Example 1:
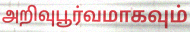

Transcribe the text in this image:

அறிவுபூர்வமாகவும்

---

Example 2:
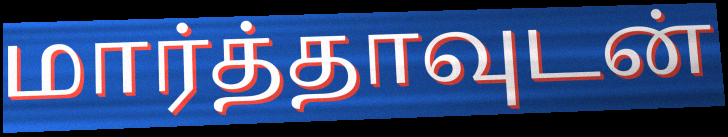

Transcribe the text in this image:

மார்த்தாவுடன்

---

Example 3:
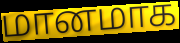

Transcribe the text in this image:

மானமாக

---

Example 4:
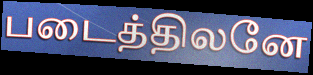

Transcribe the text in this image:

படைத்திலனே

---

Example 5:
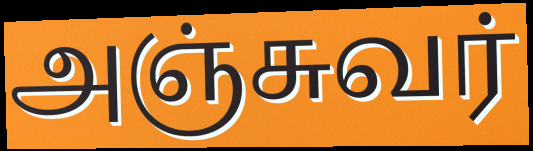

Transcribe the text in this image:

அஞ்சுவர்